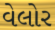
વેલોર